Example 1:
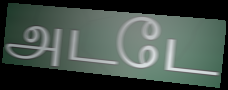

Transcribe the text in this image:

அடடே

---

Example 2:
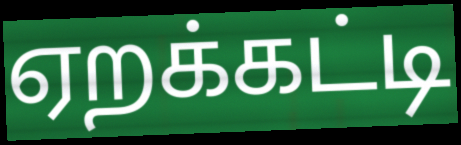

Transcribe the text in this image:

ஏறக்கட்டி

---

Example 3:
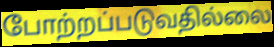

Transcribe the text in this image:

போற்றப்படுவதில்லை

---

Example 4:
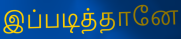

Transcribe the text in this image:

இப்படித்தானே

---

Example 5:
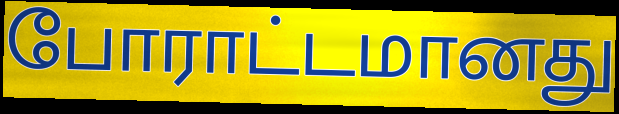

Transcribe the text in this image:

போராட்டமானது